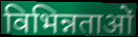
विभिन्नताओं